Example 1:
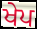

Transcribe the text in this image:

ਖੇਪ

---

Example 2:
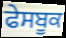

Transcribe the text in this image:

ਫੇਸਬੂਕ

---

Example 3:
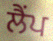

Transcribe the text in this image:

ਲੈਂਪ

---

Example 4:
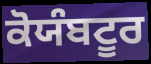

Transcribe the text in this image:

ਕੋਯੰਬਟੂਰ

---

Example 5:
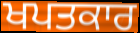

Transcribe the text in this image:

ਖਪਤਕਾਰ